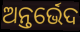
ଅନ୍ତର୍ଭେଦ